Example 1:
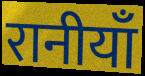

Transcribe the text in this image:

रानीयाँ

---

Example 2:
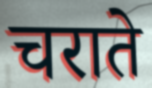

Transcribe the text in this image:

चराते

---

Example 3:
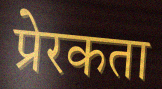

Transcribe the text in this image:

प्रेरकता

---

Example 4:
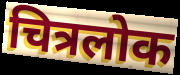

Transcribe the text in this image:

चित्रलोक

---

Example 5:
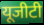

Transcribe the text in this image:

यूजीटी